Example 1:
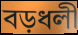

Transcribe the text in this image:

বড়ধলী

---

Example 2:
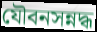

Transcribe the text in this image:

যৌবনসন্নদ্ধ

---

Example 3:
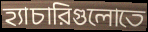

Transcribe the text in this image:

হ্যাচারিগুলোতে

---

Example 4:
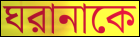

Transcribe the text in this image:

ঘরানাকে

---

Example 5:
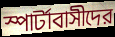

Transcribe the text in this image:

স্পার্টাবাসীদের